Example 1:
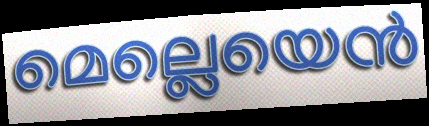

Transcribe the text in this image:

മെല്ലെയെൻ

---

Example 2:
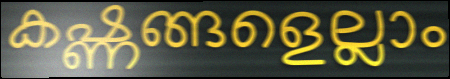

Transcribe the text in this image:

കഷ്ണങ്ങളെല്ലാം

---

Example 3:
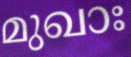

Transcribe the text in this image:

മുഖാഃ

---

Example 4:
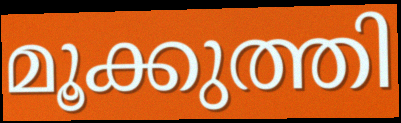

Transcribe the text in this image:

മൂക്കുത്തി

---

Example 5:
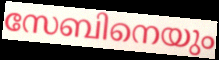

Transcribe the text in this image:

സേബിനെയും